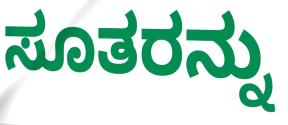
ಸೂತರನ್ನು